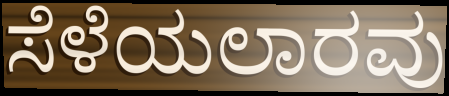
ಸೆಳೆಯಲಾರವು